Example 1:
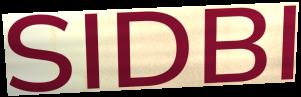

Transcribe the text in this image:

SIDBI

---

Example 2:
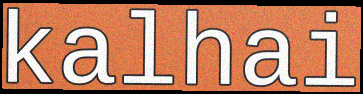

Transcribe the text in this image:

kalhai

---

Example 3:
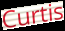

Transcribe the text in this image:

Curtis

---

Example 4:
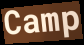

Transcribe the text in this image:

Camp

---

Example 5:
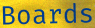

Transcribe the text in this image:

Boards